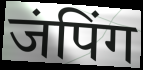
जंपिंग